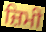
ਜ਼ਿਮੀ